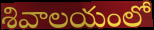
శివాలయంలో